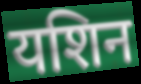
यशिन